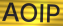
AOIP